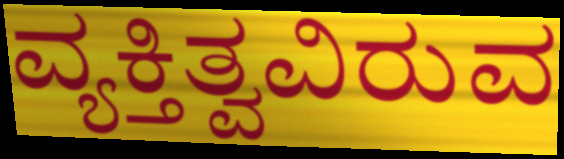
ವ್ಯಕ್ತಿತ್ವವಿರುವ